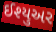
ઈશ્યુઅર